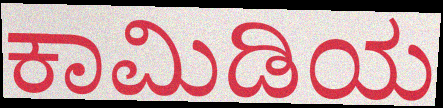
ಕಾಮಿಡಿಯ